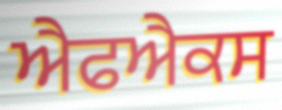
ਐਫਐਕਸ